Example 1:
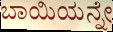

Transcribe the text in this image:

ಬಾಯಿಯನ್ನೇ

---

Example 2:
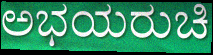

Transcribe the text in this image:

ಅಭಯರುಚಿ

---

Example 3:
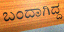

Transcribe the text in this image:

ಬಂದಾಗಿದ್ದ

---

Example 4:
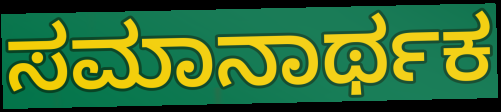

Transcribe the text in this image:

ಸಮಾನಾರ್ಥಕ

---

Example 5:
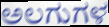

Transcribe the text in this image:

ಅಲಗುಗಳ